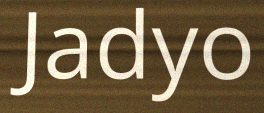
Jadyo